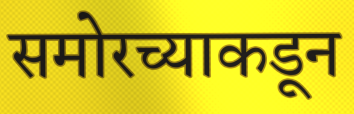
समोरच्याकडून